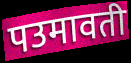
पउमावती